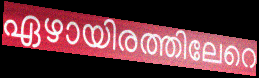
ഏഴായിരത്തിലേറെ